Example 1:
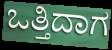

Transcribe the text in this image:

ಒತ್ತಿದಾಗ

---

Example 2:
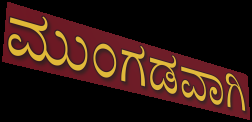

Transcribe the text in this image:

ಮುಂಗಡವಾಗಿ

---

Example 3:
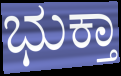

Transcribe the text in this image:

ಭುಕ್ತಾ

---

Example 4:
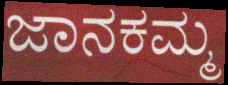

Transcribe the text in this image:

ಜಾನಕಮ್ಮ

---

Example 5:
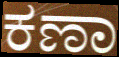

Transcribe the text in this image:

ಕಣಾ